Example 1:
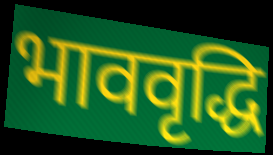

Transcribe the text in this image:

भाववृद्धि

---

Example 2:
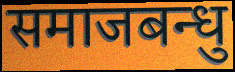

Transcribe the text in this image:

समाजबन्धु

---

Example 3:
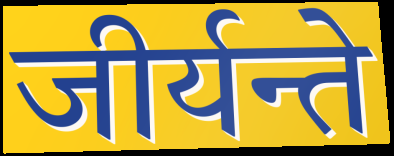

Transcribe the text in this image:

जीर्यन्ते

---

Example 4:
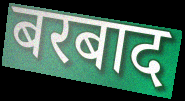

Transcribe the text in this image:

बरबाद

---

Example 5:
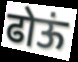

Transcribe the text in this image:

ढोऊं